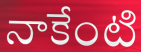
నాకేంటి